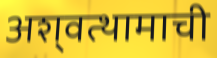
अश्वत्थामाची